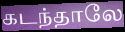
கடந்தாலே